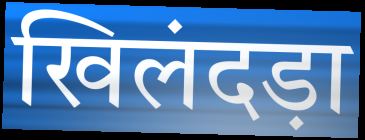
खिलंदड़ा